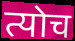
त्योच